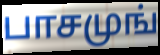
பாசமுங்